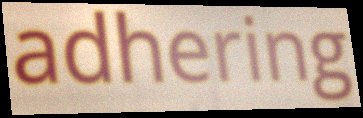
adhering